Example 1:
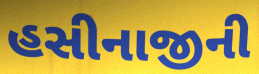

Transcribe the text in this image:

હસીનાજીની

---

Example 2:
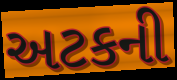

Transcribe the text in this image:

અટકની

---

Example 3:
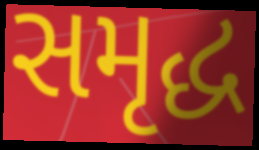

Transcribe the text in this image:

સમૃદ્ધ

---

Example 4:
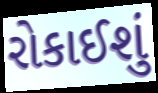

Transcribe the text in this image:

રોકાઈશું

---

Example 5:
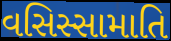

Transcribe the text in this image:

વસિસ્સામાતિ